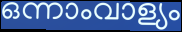
ഒന്നാംവാള്യം